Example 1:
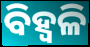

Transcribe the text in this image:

ବିହ୍ୱଳି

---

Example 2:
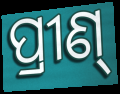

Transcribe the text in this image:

ପ୍ରୀଣ୍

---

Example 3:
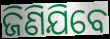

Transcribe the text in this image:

ଜିଣିଯିବେ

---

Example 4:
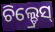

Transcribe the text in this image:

ଚିଲ୍ଡ୍ରେସ୍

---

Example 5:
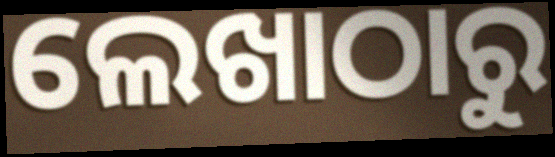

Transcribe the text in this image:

ଲେଖାଠାରୁ